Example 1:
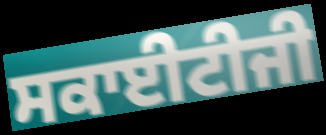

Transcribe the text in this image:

ਸਕਾਈਟੀਜੀ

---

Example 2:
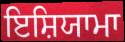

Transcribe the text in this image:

ਇਸ਼ਿਯਾਮਾ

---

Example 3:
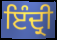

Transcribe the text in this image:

ਇੰਦ੍ਰੀ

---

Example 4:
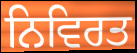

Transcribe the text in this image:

ਨਿਵਿਰਤ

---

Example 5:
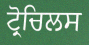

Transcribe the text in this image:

ਟ੍ਰੋਚਿਲਸ